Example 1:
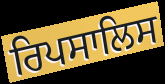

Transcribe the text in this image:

ਰਿਪਸਾਲਿਸ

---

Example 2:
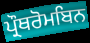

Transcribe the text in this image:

ਪ੍ਰੌਥਰੋਮਬਿਨ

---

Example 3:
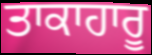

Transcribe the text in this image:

ਤਾਕਾਹਾਰੂ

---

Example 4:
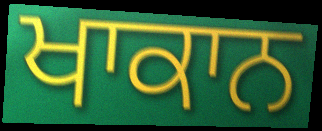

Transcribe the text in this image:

ਖਾਕਾਨ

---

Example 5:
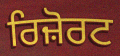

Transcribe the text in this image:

ਰਿਜ਼ੋਰਟ